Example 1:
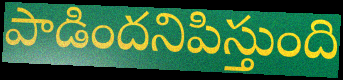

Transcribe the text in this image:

పాడిందనిపిస్తుంది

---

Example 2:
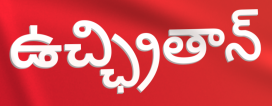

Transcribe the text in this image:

ఉచ్ఛ్రితాన్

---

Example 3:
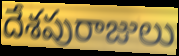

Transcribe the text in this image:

దేశపురాజులు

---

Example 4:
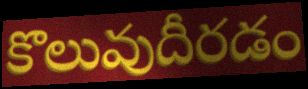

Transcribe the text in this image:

కొలువుదీరడం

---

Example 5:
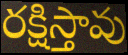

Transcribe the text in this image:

రక్షిస్తావు